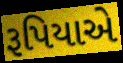
રૂપિયાએ